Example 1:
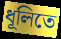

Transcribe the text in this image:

ধূলিতে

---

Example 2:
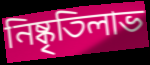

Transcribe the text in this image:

নিষ্কৃতিলাভ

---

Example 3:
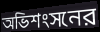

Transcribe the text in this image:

অভিশংসনের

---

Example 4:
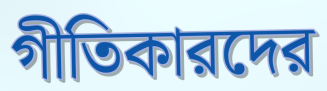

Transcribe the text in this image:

গীতিকারদের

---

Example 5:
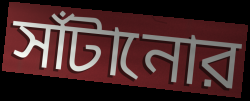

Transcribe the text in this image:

সাঁটানোর